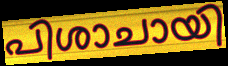
പിശാചായി